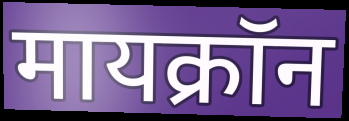
मायक्रॉन